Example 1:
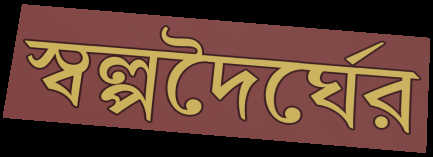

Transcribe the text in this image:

স্বল্পদৈর্ঘের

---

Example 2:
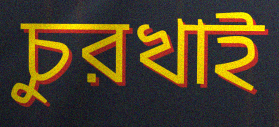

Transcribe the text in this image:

চুরখাই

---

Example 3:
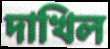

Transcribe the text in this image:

দাখিল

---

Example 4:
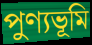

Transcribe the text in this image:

পুণ্যভূমি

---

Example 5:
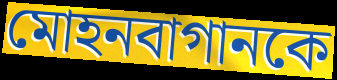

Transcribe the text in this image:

মোহনবাগানকে